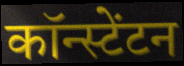
कॉन्स्टेंटन